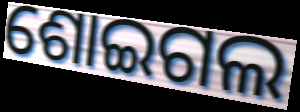
ଶୋଇଗଲ